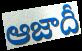
ఆజాదీ